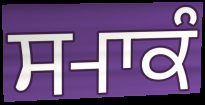
ਸ੍ਮਾਕੰ